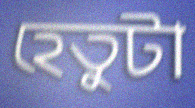
হেতুটা